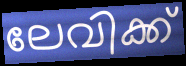
ലേവിക്ക്